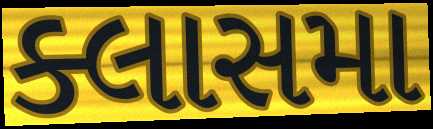
ક્લાસમા